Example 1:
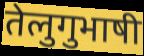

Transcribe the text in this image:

तेलुगुभाषी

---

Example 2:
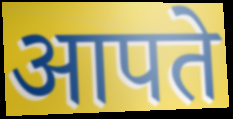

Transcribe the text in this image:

आपते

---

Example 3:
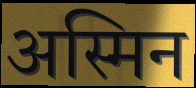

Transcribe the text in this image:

अस्मिन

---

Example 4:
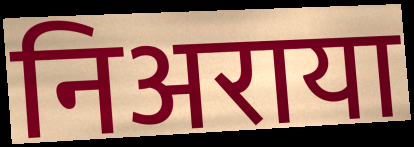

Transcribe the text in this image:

निअराया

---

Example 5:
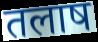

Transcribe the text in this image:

तलाष